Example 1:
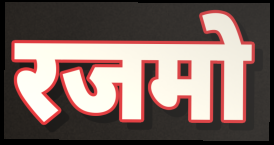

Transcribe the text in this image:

रजमो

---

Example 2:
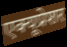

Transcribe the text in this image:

एक्यूप्रेशर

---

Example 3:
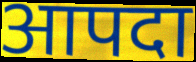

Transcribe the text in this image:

आपदा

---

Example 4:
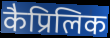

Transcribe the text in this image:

कैप्रिलिक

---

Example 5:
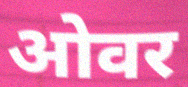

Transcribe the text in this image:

ओवर